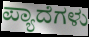
ಪ್ಯಾದೆಗಳು